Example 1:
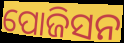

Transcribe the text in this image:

ପୋଜିସନ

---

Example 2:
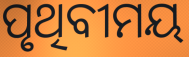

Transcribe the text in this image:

ପୃଥିବୀମୟ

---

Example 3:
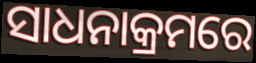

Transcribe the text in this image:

ସାଧନାକ୍ରମରେ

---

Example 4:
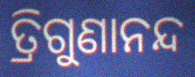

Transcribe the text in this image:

ତ୍ରିଗୁଣାନନ୍ଦ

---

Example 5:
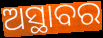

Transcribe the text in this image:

ଅସ୍ଥାବର